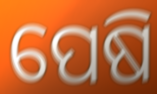
ପେଷି